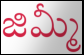
జిమ్మీ